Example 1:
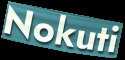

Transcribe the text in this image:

Nokuti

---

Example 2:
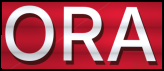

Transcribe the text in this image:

ORA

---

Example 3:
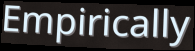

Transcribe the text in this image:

Empirically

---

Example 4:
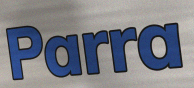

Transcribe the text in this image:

Parra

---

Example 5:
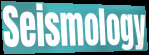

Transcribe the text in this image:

Seismology